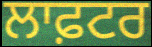
ਲਾਫ਼ਟਰ